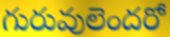
గురువులెందరో